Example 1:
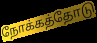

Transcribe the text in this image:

நோக்கத்தோடு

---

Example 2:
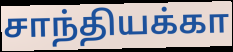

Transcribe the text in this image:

சாந்தியக்கா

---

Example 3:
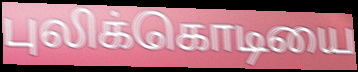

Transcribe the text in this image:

புலிக்கொடியை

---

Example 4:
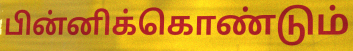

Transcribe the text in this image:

பின்னிக்கொண்டும்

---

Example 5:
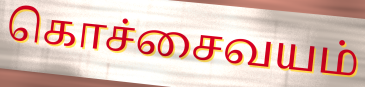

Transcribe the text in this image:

கொச்சைவயம்